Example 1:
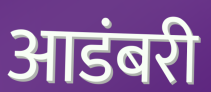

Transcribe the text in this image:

आडंबरी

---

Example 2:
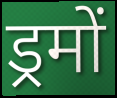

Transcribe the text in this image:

ड्रमों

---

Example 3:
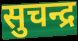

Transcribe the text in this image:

सुचन्द्र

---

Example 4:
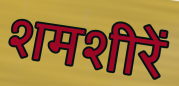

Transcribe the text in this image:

शमशीरें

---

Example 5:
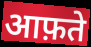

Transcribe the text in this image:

आफ़ते